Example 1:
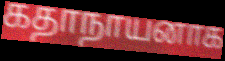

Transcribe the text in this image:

கதாநாயனாக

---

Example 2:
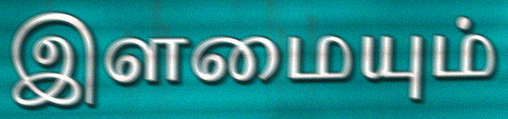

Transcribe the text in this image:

இளமையும்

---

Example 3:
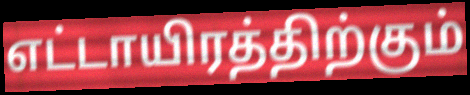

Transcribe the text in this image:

எட்டாயிரத்திற்கும்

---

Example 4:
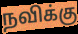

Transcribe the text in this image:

நவிக்கு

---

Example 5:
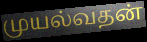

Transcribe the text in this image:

முயல்வதன்